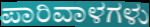
ಪಾರಿವಾಳಗಳು